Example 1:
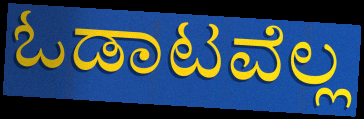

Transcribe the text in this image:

ಓಡಾಟವೆಲ್ಲ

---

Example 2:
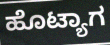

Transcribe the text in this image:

ಹೊಟ್ಯಾಗ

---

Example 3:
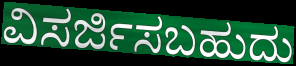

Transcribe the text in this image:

ವಿಸರ್ಜಿಸಬಹುದು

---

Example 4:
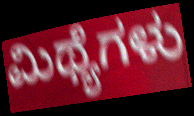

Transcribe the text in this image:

ಮಿಥ್ಯೆಗಳು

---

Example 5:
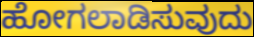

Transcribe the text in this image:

ಹೋಗಲಾಡಿಸುವುದು